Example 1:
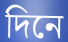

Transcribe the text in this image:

দিনে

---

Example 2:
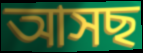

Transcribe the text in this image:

আসছ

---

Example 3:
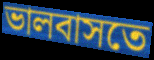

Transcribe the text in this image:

ভালবাসতে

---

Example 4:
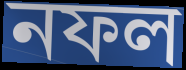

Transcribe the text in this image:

নফল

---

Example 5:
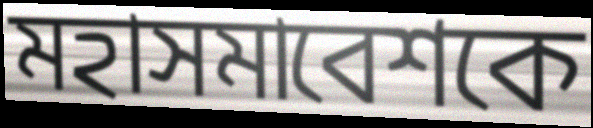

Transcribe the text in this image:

মহাসমাবেশকে